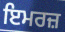
ਇਮਰਜ਼